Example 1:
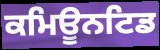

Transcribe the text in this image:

ਕਮਿਊਨਟਿਡ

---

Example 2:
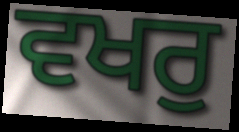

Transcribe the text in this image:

ਵਖਰੁ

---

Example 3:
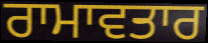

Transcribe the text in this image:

ਰਾਮਾਵਤਾਰ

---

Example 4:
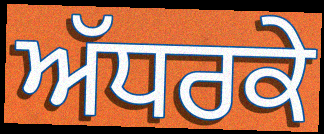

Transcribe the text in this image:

ਅੱਧਰਕੇ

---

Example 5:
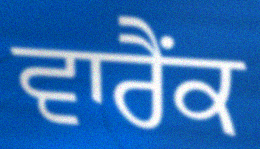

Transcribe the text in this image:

ਵਾਰੈਂਕ